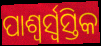
ପାଶ୍ୱର୍ସ୍ୱସ୍ତିକ